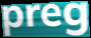
preg